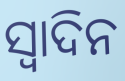
ସ୍ବାଦିନ